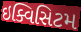
ઇક્વિસિટમ